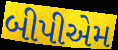
બીપીએમ